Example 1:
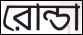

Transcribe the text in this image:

রোন্ডা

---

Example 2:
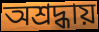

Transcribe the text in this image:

অশ্রদ্ধায়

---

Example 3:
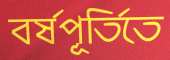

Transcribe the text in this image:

বর্ষপূর্তিতে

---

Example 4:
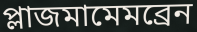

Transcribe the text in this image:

প্লাজমামেমব্রেন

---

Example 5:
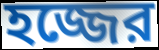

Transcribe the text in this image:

হজ্জের